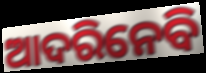
ଆଦରିନେବି